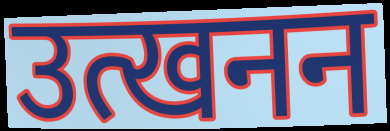
उत्खनन